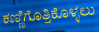
ಕಣ್ಣಿಗೊತ್ತಿಕೊಳ್ಳಲು